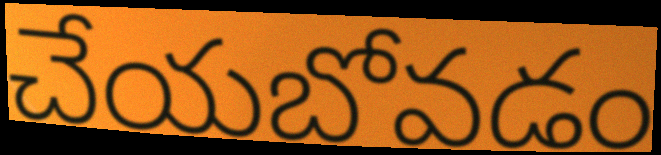
చేయబోవడం